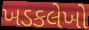
ખડકલેખો